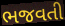
ભજવતી